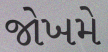
જોખમે